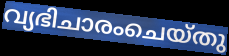
വ്യഭിചാരംചെയ്തു